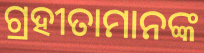
ଗ୍ରହୀତାମାନଙ୍କ